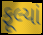
ફૂલ્યાં